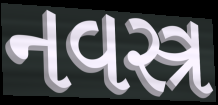
નવસ્ત્ર